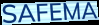
SAFEMA